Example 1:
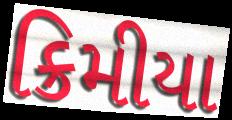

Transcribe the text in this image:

ક્રિમીયા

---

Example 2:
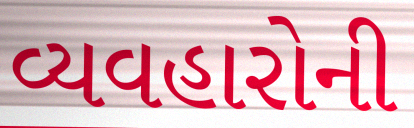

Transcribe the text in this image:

વ્યવહારોની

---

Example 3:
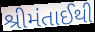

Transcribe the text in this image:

શ્રીમંતાઈથી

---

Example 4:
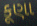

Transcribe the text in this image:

કૂણા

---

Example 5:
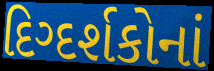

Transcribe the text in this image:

દિગ્દર્શકોનાં